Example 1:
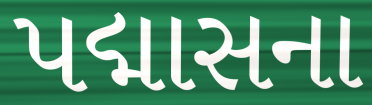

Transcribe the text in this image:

પદ્માસના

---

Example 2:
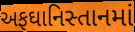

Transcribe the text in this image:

અફઘાનિસ્તાનમાં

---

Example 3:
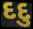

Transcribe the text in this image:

દદુ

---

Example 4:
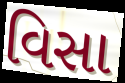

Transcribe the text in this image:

વિસા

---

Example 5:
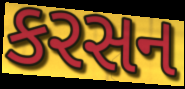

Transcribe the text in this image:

કરસન